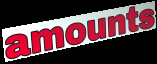
amounts